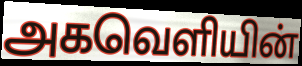
அகவெளியின்